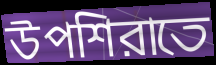
উপশিরাতে